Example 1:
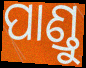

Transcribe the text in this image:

ପାଣ୍ଡୁ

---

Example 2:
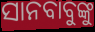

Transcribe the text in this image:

ସାନବାବୁଙ୍କୁ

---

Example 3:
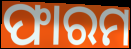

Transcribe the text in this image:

ଫାରମ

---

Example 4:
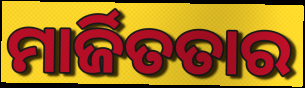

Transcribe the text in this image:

ମାର୍ଜିତତାର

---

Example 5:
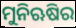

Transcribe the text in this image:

ମୁନିଋଷିର